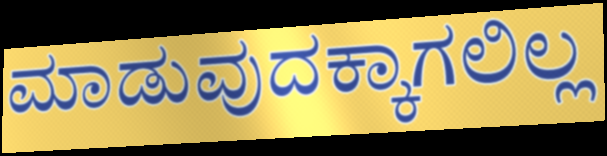
ಮಾಡುವುದಕ್ಕಾಗಲಿಲ್ಲ